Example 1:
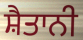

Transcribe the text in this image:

ਸ਼ੈਤਾਨੀ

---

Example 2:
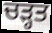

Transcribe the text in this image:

ਚੜ੍ਹਤ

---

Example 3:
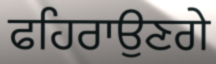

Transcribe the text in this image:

ਫਹਿਰਾਉਣਗੇ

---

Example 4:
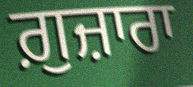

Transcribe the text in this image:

ਗ਼ੁਜ਼ਾਰਾ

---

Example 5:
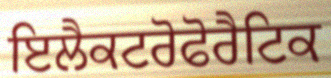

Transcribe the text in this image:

ਇਲੈਕਟਰੋਫੋਰੈਟਿਕ